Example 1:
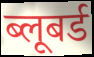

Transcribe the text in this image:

ब्लूबर्ड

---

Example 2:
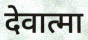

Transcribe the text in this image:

देवात्मा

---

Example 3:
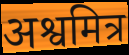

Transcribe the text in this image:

अश्वमित्र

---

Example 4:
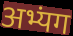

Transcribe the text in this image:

अभ्यंग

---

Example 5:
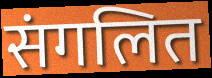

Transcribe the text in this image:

संगलित